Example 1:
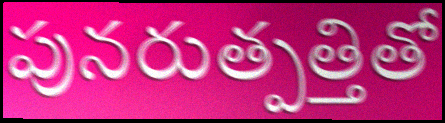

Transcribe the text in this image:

పునరుత్పత్తితో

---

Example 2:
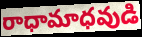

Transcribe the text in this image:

రాధామాధవుడి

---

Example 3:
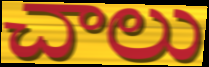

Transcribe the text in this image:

చాలు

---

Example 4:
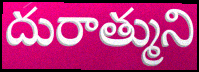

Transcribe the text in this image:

దురాత్ముని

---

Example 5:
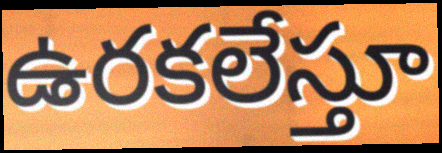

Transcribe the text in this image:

ఉరకలేస్తూ